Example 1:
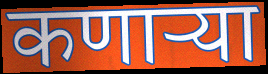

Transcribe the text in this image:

कणाऱ्या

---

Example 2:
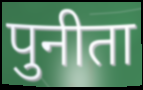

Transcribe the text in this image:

पुनीता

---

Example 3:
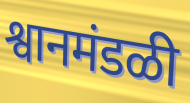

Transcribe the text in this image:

श्वानमंडळी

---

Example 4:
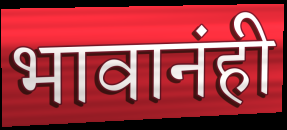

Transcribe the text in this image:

भावानंही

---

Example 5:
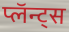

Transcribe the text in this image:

प्लॅन्ट्स